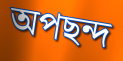
অপছন্দ